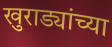
खुराड्यांच्या